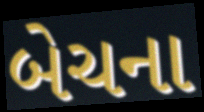
બેચના